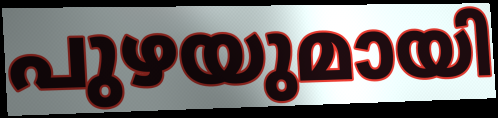
പുഴയുമായി